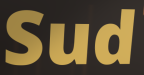
Sud